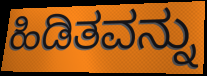
ಹಿಡಿತವನ್ನು